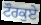
ਟੌਰਕੁਏ